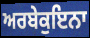
ਅਰਬੇਕੁਇਨਾ